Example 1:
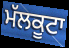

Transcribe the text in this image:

ਮੱਲਕੂਟਾ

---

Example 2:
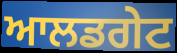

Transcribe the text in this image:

ਆਲਡਗੇਟ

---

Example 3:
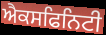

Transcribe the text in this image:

ਐਕਸਫਿਨਿਟੀ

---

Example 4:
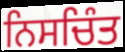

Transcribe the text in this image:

ਨਿਸਚਿੰਤ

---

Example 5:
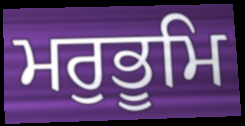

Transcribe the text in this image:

ਮਰੁਭੂਮਿ